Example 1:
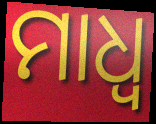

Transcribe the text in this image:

ମାଧ୍ଵ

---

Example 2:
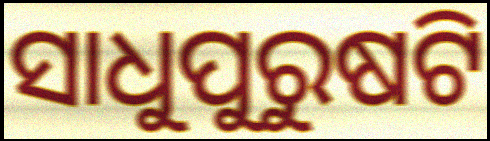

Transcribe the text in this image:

ସାଧୁପୁରୁଷଟି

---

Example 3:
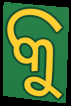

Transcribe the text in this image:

କୁ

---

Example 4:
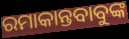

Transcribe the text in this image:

ରମାକାନ୍ତବାବୁଙ୍କ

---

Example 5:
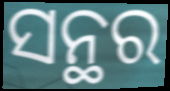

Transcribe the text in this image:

ସନ୍ଥର